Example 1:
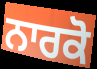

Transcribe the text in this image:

ਨਾਰਕੋ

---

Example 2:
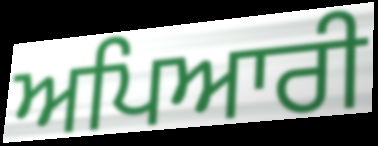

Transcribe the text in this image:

ਅਪਿਆਰੀ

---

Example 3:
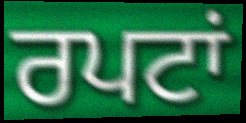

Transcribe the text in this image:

ਰਪਟਾਂ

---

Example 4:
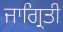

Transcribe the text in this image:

ਜਾਗ੍ਰਿਤੀ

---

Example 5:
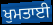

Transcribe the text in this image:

ਖੁਮਤਾਈ